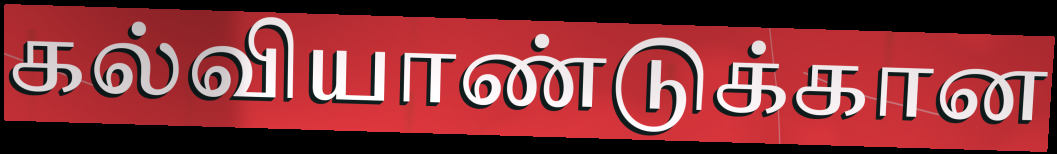
கல்வியாண்டுக்கான